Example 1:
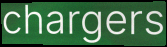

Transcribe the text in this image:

chargers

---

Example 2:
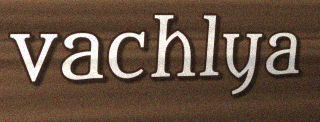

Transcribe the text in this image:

vachlya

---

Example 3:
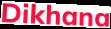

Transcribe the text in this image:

Dikhana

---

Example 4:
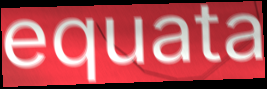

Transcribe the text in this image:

equata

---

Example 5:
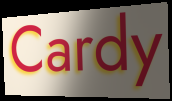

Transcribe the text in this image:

Cardy